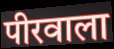
पीरवाला